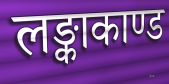
लङ्काकाण्ड